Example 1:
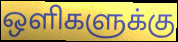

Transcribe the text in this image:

ஒளிகளுக்கு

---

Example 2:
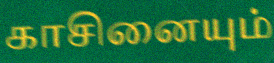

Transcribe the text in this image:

காசினையும்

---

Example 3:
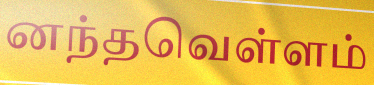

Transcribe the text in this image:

னந்தவெள்ளம்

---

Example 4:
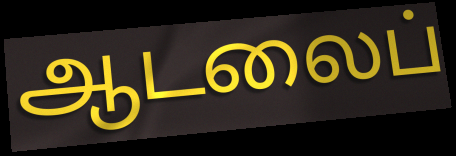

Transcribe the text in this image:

ஆடலைப்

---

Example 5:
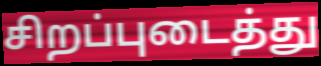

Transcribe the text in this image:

சிறப்புடைத்து